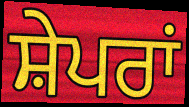
ਸ਼ੇਪਰਾਂ